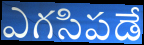
ఎగసిపడే